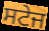
ਸਟੇਜ